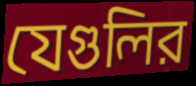
যেগুলির